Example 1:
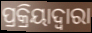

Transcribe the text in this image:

ପ୍ରକ୍ରିୟାଦ୍ଵାରା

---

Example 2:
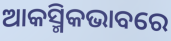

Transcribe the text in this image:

ଆକସ୍ମିକଭାବରେ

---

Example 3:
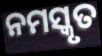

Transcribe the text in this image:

ନମସ୍କୃତ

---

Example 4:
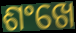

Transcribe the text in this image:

ଶଂଖେ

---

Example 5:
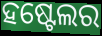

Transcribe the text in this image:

ହଷ୍ଟେଲର